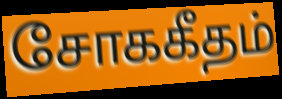
சோககீதம்